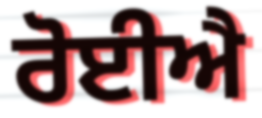
ਰੋਈਐ